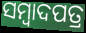
ସମ୍ବାଦପତ୍ର